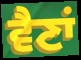
ਵੈਣਾਂ